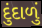
દુંદાળું